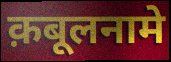
क़बूलनामे